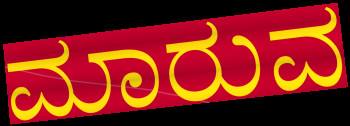
ಮಾರುವ